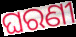
ଘରଣୀ